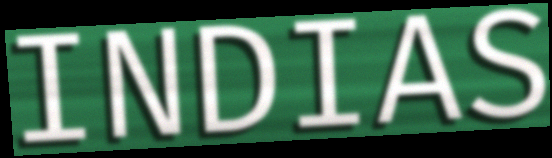
INDIAS